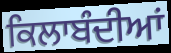
ਕਿਲਾਬੰਦੀਆਂ